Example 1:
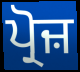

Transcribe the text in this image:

ਪ੍ਰੋਜ਼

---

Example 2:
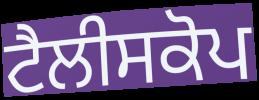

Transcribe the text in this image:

ਟੈਲੀਸਕੋਪ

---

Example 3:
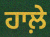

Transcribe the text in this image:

ਹਾਲ਼ੇ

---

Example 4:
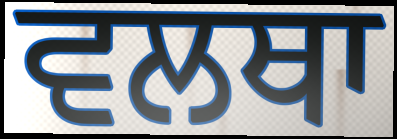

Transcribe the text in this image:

ਵਲਥਾ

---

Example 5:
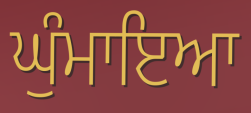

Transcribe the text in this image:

ਘੁੰਮਾਇਆ